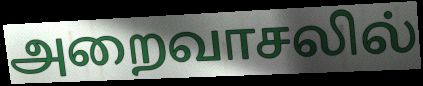
அறைவாசலில்